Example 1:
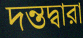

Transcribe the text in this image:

দন্তদ্বারা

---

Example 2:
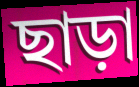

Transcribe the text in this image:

ছাড়া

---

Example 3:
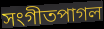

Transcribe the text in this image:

সংগীতপাগল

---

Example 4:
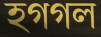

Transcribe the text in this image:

হগগল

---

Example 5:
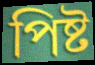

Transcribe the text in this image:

পিষ্ট